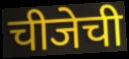
चीजेची